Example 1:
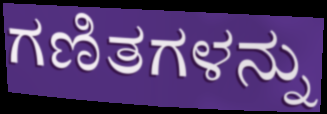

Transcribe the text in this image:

ಗಣಿತಗಳನ್ನು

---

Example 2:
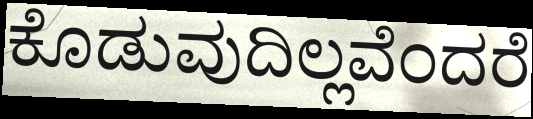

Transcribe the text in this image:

ಕೊಡುವುದಿಲ್ಲವೆಂದರೆ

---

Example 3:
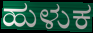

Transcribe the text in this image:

ಹುಳುಕ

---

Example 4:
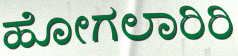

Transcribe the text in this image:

ಹೋಗಲಾರಿರಿ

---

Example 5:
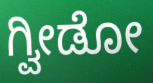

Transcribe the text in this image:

ಗ್ವೀಡೋ